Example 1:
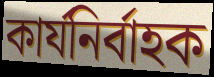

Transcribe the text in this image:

কাৰ্যনিৰ্বাহক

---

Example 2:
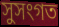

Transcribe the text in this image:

সুসংগত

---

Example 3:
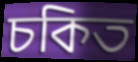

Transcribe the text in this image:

চকিত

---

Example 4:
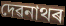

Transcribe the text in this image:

দেৱনাথৰ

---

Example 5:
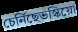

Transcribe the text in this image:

চেৰ্নিছেভস্কিয়ো